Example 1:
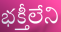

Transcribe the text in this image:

భక్తీలేని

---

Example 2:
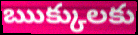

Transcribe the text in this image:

ఋక్కులకు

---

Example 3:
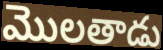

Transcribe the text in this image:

మొలతాడు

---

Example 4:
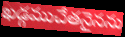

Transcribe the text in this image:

ఖడ్గముచేతనైనను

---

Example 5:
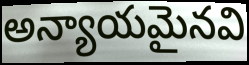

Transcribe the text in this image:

అన్యాయమైనవి